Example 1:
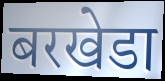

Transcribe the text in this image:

बरखेडा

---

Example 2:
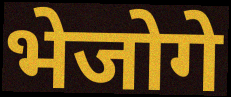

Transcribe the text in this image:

भेजोगे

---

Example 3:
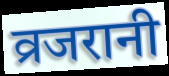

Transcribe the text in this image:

व्रजरानी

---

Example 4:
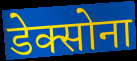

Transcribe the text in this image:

डेक्सोना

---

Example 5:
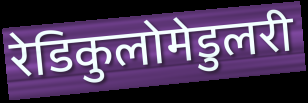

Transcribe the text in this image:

रेडिकुलोमेडुलरी